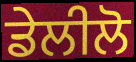
ਡੇਲੀਲੋ